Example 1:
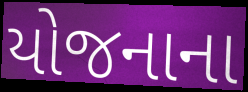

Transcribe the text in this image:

યોજનાના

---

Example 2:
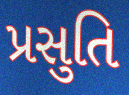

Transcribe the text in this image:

પ્રસુતિ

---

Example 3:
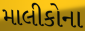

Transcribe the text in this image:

માલીકોના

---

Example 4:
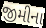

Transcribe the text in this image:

જીમીના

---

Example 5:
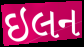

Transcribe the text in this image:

ઇલન